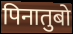
पिनातुबो